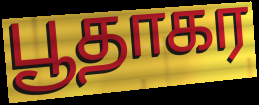
பூதாகர